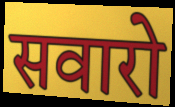
सवारो